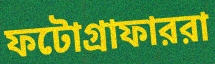
ফটোগ্রাফাররা